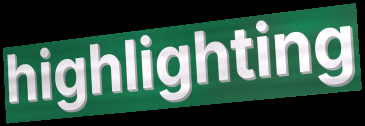
highlighting